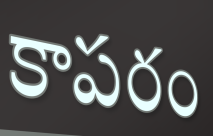
కాపరం